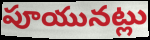
పూయునట్లు